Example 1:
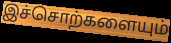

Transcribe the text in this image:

இச்சொற்களையும்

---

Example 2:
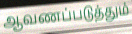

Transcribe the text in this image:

ஆவணப்படுத்தும்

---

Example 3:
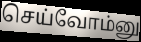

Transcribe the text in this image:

செய்வோம்னு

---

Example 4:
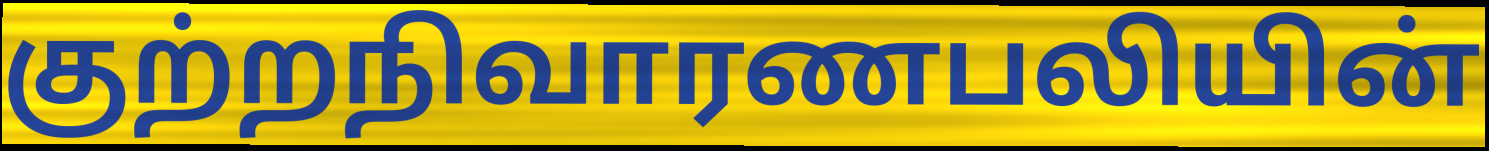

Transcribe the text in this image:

குற்றநிவாரணபலியின்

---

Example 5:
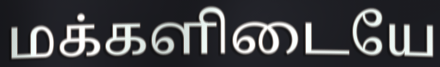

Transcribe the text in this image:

மக்களிடையே